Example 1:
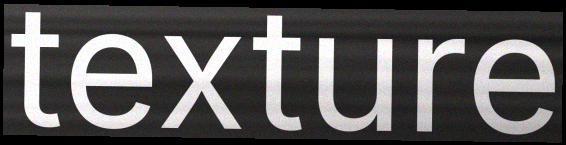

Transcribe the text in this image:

texture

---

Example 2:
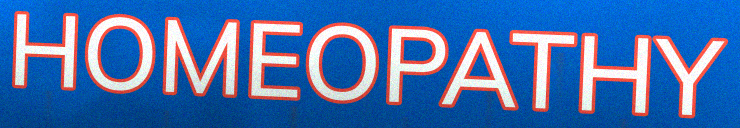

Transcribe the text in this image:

HOMEOPATHY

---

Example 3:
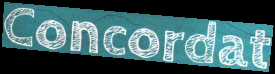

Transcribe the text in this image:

Concordat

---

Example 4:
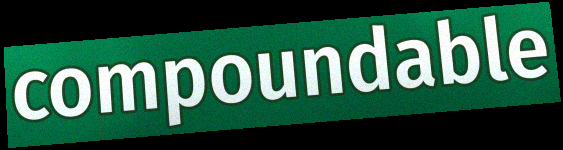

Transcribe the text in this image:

compoundable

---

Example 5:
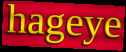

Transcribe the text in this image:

hageye